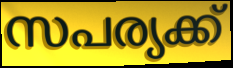
സപര്യക്ക്